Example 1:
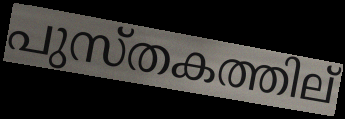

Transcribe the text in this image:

പുസ്തകത്തില്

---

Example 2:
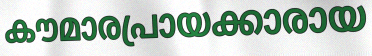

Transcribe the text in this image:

കൗമാരപ്രായക്കാരായ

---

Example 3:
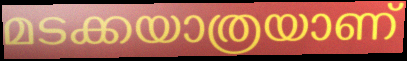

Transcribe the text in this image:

മടക്കയാത്രയാണ്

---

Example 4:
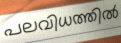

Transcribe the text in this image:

പലവിധത്തിൽ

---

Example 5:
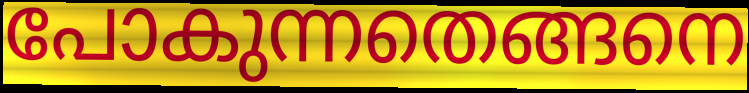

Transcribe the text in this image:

പോകുന്നതെങ്ങനെ